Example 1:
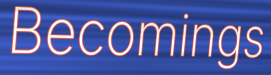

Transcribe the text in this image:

Becomings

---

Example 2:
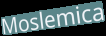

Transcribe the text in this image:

Moslemica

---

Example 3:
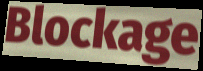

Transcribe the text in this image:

Blockage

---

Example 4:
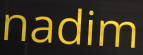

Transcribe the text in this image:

nadim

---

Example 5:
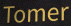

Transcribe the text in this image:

Tomer